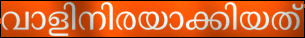
വാളിനിരയാക്കിയത്